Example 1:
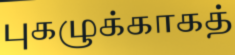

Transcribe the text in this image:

புகழுக்காகத்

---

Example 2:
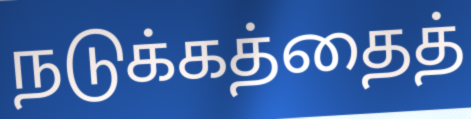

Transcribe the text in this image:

நடுக்கத்தைத்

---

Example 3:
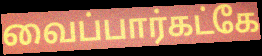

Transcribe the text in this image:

வைப்பார்கட்கே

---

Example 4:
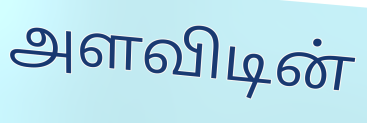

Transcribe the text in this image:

அளவிடின்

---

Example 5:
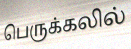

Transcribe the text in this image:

பெருக்கலில்